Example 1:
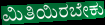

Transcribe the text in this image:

ಮಿತಿಯಿರಬೇಕು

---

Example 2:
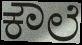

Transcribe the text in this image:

ಕೌಲೆ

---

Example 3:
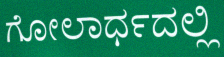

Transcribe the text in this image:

ಗೋಲಾರ್ಧದಲ್ಲಿ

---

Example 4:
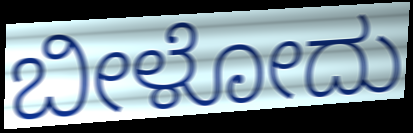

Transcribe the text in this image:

ಬೀಳೋದು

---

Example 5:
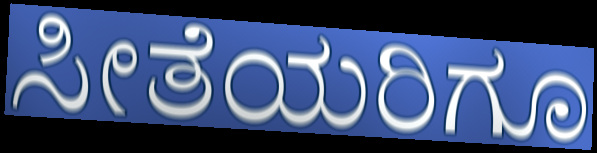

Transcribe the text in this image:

ಸೀತೆಯರಿಗೂ